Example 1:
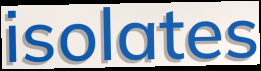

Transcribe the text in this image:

isolates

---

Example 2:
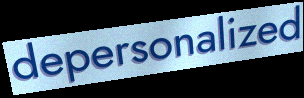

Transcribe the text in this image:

depersonalized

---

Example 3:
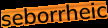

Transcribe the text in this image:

seborrheic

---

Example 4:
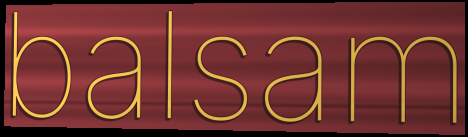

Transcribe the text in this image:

balsam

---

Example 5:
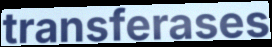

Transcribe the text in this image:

transferases